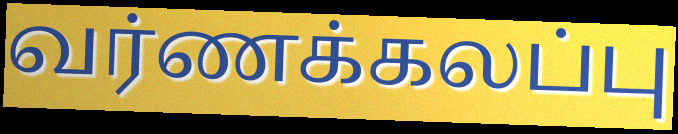
வர்ணக்கலப்பு